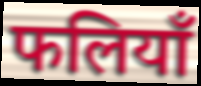
फलियाँ